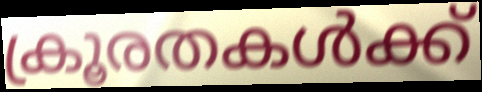
ക്രൂരതകൾക്ക്